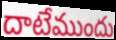
దాటేముందు